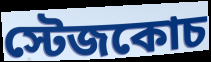
স্টেজকোচ